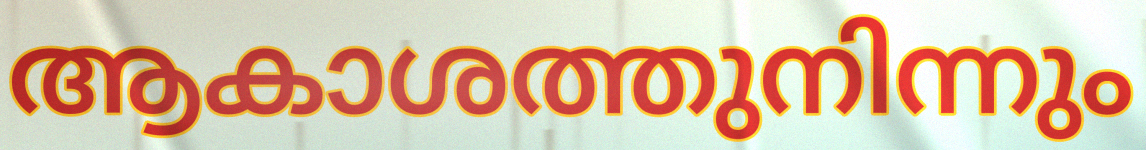
ആകാശത്തുനിന്നും